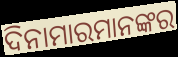
ଦିନାମାରମାନଙ୍କର